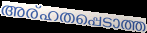
അര്ഹതപ്പെടാത്ത